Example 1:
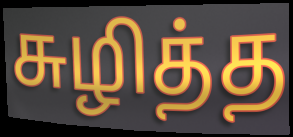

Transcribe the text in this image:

சுழித்த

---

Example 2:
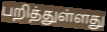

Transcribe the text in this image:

பறித்துள்ளது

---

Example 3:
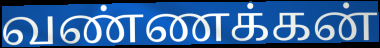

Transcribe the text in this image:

வண்ணக்கன்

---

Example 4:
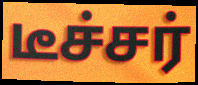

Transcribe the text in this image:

டீச்சர்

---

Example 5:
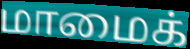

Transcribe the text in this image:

மாமைக்